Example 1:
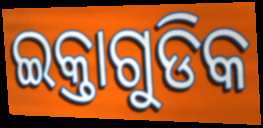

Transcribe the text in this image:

ଇକ୍ତାଗୁଡିକ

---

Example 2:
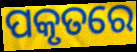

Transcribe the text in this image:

ପକୃତରେ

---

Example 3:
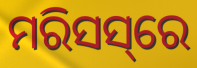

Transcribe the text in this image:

ମରିସସ୍‌ରେ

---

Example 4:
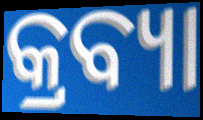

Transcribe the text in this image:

କ୍ରବ୍ୟା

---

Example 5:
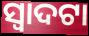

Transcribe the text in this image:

ସ୍ଵାଦଟା